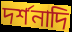
দর্শনাদি